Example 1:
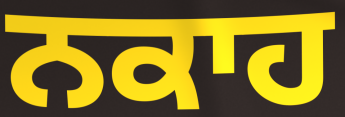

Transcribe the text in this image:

ਨਕਾਹ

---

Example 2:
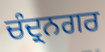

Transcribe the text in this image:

ਚੰਦ੍ਰਨਗਰ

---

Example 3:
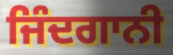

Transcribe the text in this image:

ਜਿੰਦਗਾਨੀ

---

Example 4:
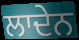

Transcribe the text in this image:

ਲਾਦੇਨ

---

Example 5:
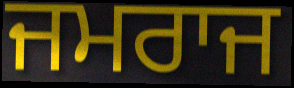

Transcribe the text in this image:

ਜਮਰਾਜ